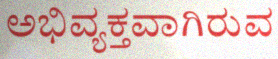
ಅಭಿವ್ಯಕ್ತವಾಗಿರುವ